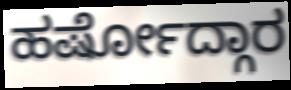
ಹರ್ಷೋದ್ಗಾರ